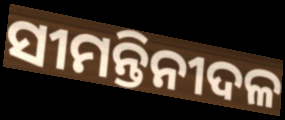
ସୀମନ୍ତିନୀଦଳ